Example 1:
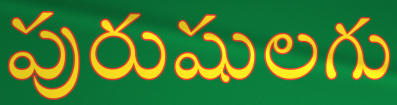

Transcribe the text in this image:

పురుషులగు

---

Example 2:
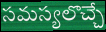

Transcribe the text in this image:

సమస్యలొచ్చే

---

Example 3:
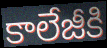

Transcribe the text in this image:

కాలేజీకి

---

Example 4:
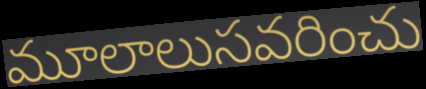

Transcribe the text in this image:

మూలాలుసవరించు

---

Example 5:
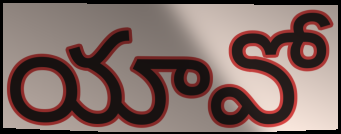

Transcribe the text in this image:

యావో